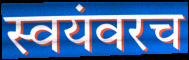
स्वयंवरच